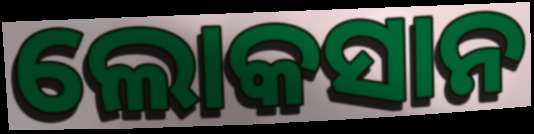
ଲୋକସାନ